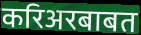
करिअरबाबत